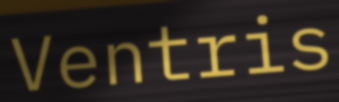
Ventris